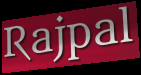
Rajpal